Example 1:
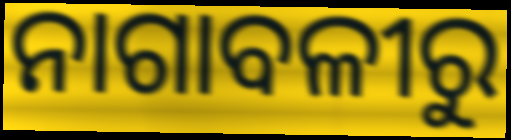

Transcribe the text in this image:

ନାଗାବଳୀରୁ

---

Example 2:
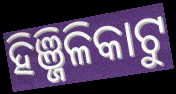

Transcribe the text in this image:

ହିଞ୍ଜିଳିକାଟୁ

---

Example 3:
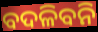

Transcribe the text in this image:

ବଦଳିବନି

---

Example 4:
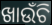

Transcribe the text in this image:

ଖାଉଁଚି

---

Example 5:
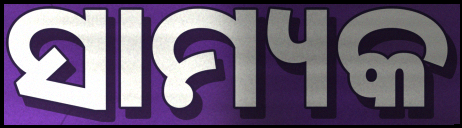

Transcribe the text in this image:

ସାମ୍ୟକ